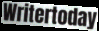
Writertoday